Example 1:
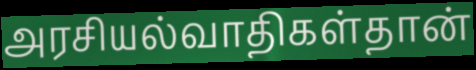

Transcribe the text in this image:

அரசியல்வாதிகள்தான்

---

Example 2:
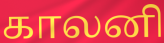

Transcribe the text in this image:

காலனி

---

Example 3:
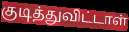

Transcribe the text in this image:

குடித்துவிட்டாள்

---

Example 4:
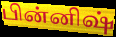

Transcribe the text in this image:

பின்னிஷ்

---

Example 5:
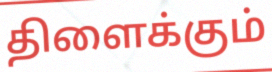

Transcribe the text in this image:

திளைக்கும்